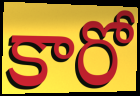
కారో